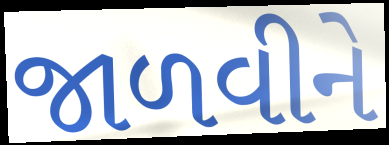
જાળવીને